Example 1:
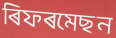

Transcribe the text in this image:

ৰিফৰমেছন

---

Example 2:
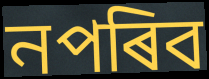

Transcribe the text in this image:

নপৰিব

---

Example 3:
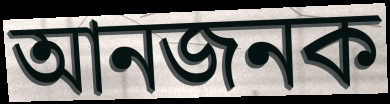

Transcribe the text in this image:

আনজনক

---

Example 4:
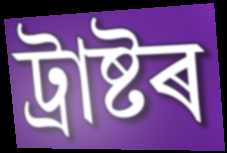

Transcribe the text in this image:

ট্ৰাষ্টৰ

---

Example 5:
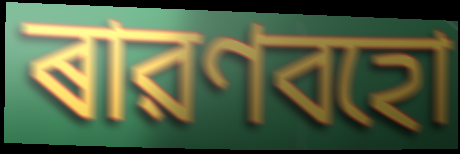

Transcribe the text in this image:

ৰাৱণবহো